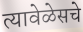
त्यावेळेसचे